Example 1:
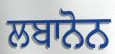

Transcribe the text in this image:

ਲਬਾਨੋਨ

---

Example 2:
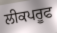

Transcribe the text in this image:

ਲੀਕਪਰੂਫ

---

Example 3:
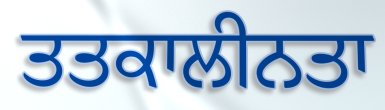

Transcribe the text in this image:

ਤਤਕਾਲੀਨਤਾ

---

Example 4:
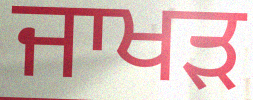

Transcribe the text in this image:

ਜਾਖੜ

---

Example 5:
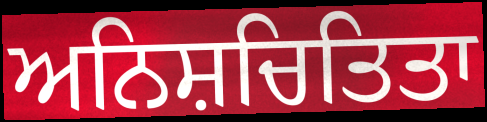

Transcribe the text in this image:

ਅਨਿਸ਼ਚਿਤਿਤਾ